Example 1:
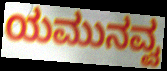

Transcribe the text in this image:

ಯಮುನವ್ವ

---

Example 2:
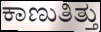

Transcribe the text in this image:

ಕಾಣುತಿತ್ತು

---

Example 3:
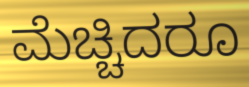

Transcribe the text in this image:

ಮೆಚ್ಚಿದರೂ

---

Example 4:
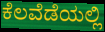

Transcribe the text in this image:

ಕೆಲವೆಡೆಯಲ್ಲಿ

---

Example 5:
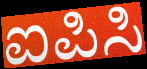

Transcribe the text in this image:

ಐಪಿಸಿ